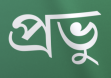
প্ৰভু